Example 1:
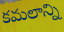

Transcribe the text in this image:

కమలాన్ని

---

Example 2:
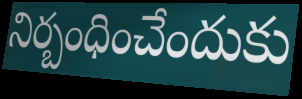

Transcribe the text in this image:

నిర్బంధించేందుకు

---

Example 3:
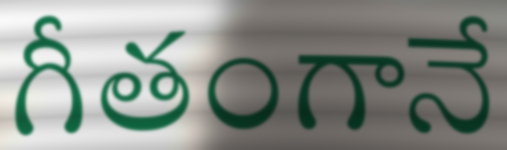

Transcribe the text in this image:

గీతంగానే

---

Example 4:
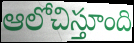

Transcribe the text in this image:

ఆలోచిస్తూంది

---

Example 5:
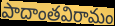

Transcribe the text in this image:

పాదాంతవిరామం